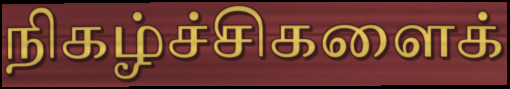
நிகழ்ச்சிகளைக்